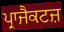
ਪ੍ਰਾਜੈਕਟਜ਼